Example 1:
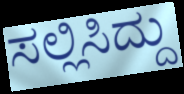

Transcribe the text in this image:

ಸಲ್ಲಿಸಿದ್ದು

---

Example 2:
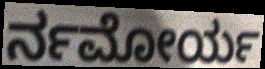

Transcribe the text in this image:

ರ್ನಮೋರ್ಯ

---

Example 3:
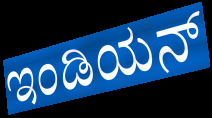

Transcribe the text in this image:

ಇಂಡಿಯನ್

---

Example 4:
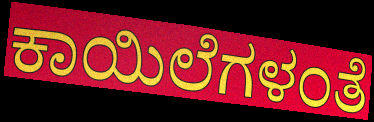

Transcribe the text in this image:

ಕಾಯಿಲೆಗಳಂತೆ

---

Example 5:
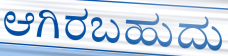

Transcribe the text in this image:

ಆಗಿರಬಹುದು